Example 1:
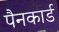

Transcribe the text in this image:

पैनकार्ड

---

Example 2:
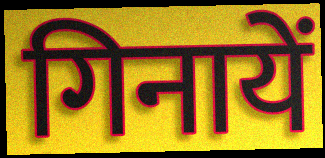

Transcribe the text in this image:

गिनायें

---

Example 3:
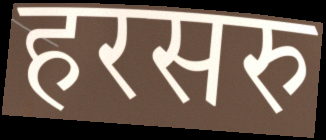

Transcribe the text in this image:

हरसरु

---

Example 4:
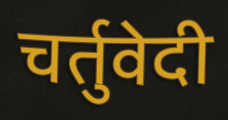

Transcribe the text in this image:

चर्तुवेदी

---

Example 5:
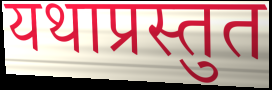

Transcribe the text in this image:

यथाप्रस्तुत